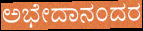
ಅಭೇದಾನಂದರ